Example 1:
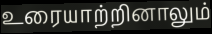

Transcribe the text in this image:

உரையாற்றினாலும்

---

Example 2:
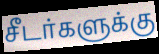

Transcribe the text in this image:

சீடர்களுக்கு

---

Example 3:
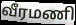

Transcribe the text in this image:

வீரமணி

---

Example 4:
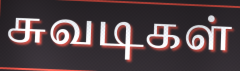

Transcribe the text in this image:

சுவடிகள்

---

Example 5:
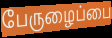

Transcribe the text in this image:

பேருழைப்பை